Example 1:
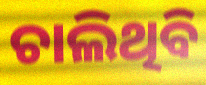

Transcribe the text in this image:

ଚାଲିଥିବି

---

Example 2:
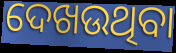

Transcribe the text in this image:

ଦେଖଉଥିବା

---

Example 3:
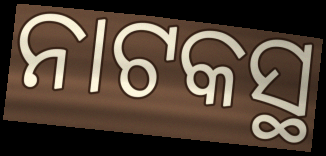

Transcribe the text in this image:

ନାଟକସ୍ଥ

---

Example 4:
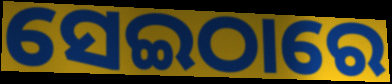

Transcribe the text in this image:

ସେଇଠାରେ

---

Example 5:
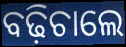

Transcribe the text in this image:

ବଢ଼ିଚାଲେ